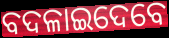
ବଦଳାଇଦେବେ